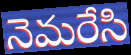
నెమరేసి